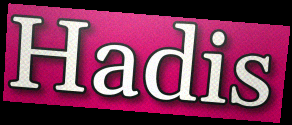
Hadis